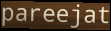
pareejat